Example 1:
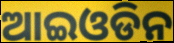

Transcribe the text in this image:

ଆଇଓଡିନ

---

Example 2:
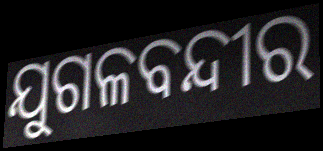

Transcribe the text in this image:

ଯୁଗଳବନ୍ଦୀର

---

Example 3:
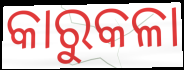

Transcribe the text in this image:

କାରୁକଳା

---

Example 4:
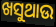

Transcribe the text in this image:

ଖସୁଥାଉ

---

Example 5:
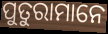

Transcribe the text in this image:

ପୁତୁରାମାନେ